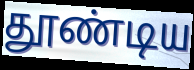
தூண்டிய